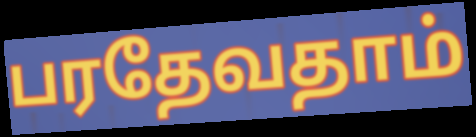
பரதேவதாம்